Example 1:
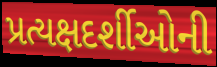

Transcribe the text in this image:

પ્રત્યક્ષદર્શીઓની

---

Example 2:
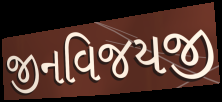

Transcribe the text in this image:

જીનવિજયજી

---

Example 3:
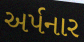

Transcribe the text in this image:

અર્પનાર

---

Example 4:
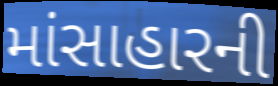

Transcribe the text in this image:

માંસાહારની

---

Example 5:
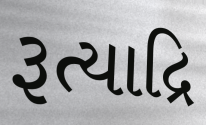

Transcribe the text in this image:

રૂત્યાદ્રિ